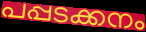
പപ്പടക്കനം